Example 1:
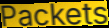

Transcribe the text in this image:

Packets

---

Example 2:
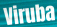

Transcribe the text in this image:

Viruba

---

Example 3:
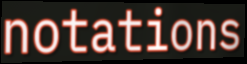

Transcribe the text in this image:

notations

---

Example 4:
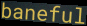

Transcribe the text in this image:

baneful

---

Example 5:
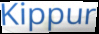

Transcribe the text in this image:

Kippur